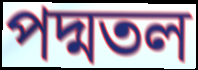
পদ্মতল